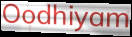
Oodhiyam